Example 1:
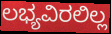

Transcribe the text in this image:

ಲಭ್ಯವಿರಲಿಲ್ಲ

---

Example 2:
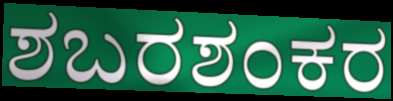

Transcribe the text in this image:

ಶಬರಶಂಕರ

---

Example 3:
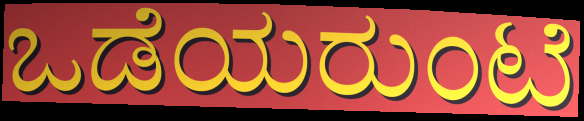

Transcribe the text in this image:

ಒಡೆಯರುಂಟೆ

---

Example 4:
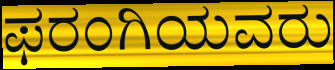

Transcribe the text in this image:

ಫರಂಗಿಯವರು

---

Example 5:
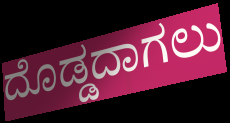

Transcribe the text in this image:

ದೊಡ್ಡದಾಗಲು